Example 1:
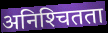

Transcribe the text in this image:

अनिश्‍चितता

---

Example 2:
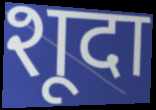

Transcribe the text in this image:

शूदा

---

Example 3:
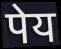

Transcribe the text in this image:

पेय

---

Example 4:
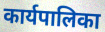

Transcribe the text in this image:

कार्यपालिका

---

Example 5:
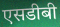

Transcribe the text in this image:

एसडीबी